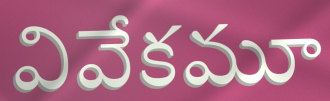
వివేకమూ